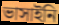
ভাসাইনি